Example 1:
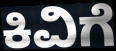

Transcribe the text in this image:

ಕಿವಿಗೆ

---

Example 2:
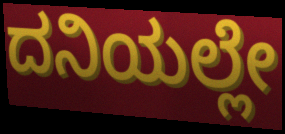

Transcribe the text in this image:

ದನಿಯಲ್ಲೇ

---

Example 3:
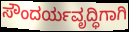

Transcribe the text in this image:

ಸೌಂದರ್ಯವೃದ್ಧಿಗಾಗಿ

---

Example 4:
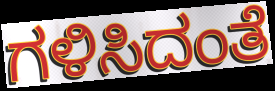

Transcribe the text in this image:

ಗಳಿಸಿದಂತೆ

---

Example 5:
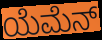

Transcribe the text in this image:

ಯೆಮೆನ್